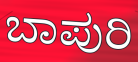
ಬಾಪುರಿ